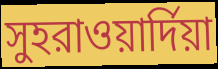
সুহরাওয়ার্দিয়া